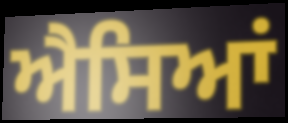
ਐਸਿਆਂ